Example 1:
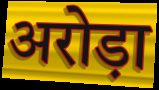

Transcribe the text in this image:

अरोड़ा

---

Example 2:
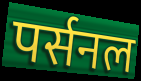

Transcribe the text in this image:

पर्सनल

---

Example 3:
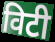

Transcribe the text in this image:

विटी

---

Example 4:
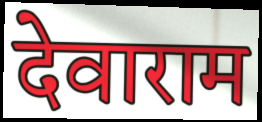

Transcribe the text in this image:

देवाराम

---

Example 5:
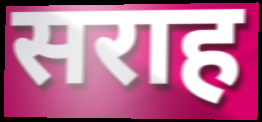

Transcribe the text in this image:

सराह